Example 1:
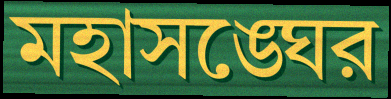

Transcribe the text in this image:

মহাসঙ্ঘের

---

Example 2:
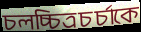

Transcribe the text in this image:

চলচ্চিত্রচর্চাকে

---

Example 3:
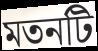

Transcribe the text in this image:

মতনটি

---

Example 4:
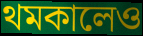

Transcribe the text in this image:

থমকালেও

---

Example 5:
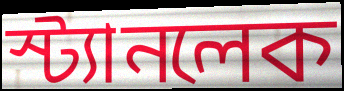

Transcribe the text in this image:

স্ট্যানলেক